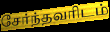
சேர்ந்தவரிடம்